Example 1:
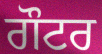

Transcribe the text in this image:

ਗੌਟਰ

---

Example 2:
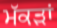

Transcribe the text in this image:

ਮੱਕੜਾਂ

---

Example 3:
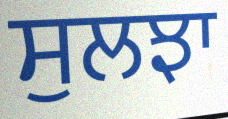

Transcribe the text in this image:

ਸੁਲਝਾ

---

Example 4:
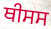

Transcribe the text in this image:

ਥੀਸਸ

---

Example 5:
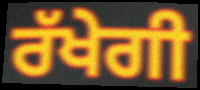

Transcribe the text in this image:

ਰੱਖੇਗੀ